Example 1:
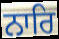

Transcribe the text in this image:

ਨਾਰਿ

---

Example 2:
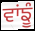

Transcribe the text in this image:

ਵਾਂਙੂੰ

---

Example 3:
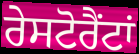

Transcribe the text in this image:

ਰੇਸਟੋਰੈਂਟਾਂ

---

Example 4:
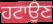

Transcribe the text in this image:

ਹਟਾਉਣ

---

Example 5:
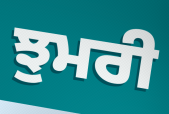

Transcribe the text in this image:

ਝੁਮਰੀ